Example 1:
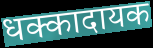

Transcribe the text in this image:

धक्कादायक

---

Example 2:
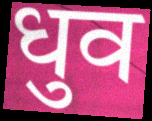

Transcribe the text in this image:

धुव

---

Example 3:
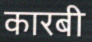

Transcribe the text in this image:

कारबी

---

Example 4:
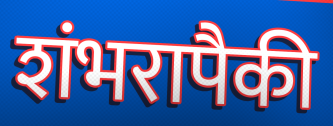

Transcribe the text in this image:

शंभरापैकी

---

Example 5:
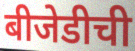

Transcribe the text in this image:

बीजेडीची